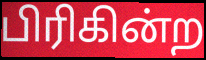
பிரிகின்ற